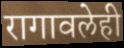
रागावलेही